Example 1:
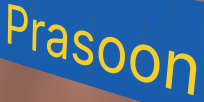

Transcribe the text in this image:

Prasoon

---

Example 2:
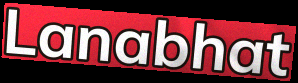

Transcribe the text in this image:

Lanabhat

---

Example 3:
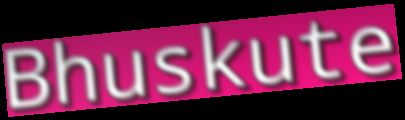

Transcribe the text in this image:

Bhuskute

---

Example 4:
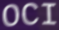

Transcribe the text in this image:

OCI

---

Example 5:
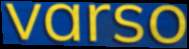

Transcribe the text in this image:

varso